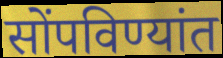
सोंपविण्यांत